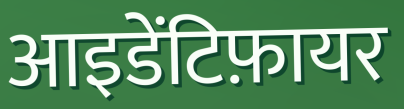
आइडेंटिफ़ायर